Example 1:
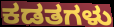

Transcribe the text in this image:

ಕಡತಗಳು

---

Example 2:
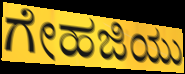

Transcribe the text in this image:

ಗೇಹಜಿಯು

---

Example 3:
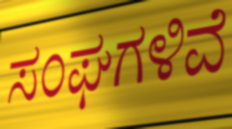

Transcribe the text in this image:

ಸಂಘಗಳಿವೆ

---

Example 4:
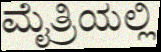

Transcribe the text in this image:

ಮೈತ್ರಿಯಲ್ಲಿ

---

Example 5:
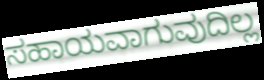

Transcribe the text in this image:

ಸಹಾಯವಾಗುವುದಿಲ್ಲ